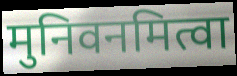
मुनिवनमित्वा